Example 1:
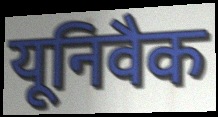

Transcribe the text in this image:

यूनिवैक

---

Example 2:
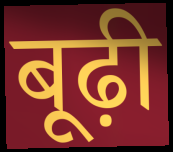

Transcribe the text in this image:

बूढ़ी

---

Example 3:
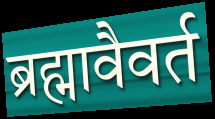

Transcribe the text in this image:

ब्रह्मावैवर्त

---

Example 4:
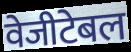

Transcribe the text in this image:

वेजीटेबल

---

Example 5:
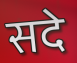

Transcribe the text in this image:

सदे